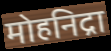
मोहनिद्रा